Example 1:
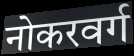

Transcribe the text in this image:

नोकरवर्ग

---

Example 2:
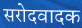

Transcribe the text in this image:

सरोदवादक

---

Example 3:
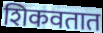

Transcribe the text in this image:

शिकवतात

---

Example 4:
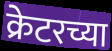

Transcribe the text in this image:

क्रेटरच्या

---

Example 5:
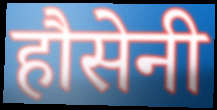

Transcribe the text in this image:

हौसेनी